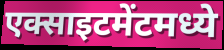
एक्साइटमेंटमध्ये